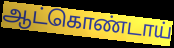
ஆட்கொண்டாய்